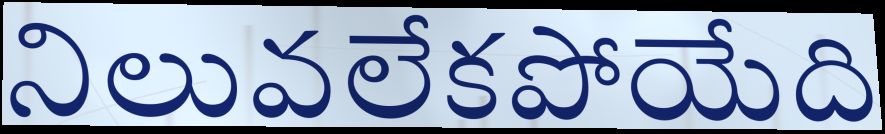
నిలువలేకపోయేది